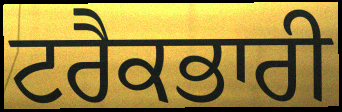
ਟਰੈਕਭਾਰੀ